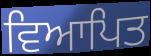
ਵਿਆਪਿਤ